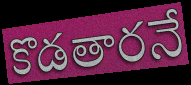
కొడతారనే